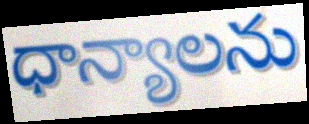
ధాన్యాలను